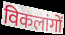
विकलांगों